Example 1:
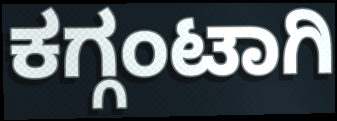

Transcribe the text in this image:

ಕಗ್ಗಂಟಾಗಿ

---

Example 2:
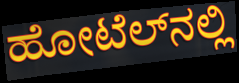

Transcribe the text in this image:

ಹೋಟೆಲ್‌ನಲ್ಲಿ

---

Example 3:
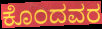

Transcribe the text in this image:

ಕೊಂದವರ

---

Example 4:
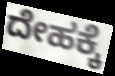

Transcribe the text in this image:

ದೇಹಕ್ಕೆ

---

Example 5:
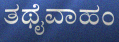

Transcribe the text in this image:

ತಥೈವಾಹಂ